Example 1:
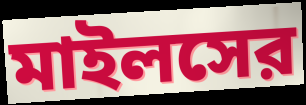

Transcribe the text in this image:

মাইলসের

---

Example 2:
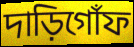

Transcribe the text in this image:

দাড়িগোঁফ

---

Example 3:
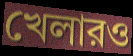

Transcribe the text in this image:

খেলারও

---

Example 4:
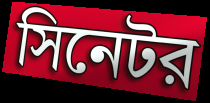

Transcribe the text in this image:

সিনেটর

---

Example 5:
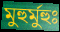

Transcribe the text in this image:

মুহুর্মুহুঃ